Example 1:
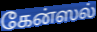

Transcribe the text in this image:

கேன்ஸல்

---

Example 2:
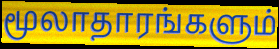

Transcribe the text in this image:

மூலாதாரங்களும்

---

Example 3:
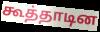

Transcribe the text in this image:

கூத்தாடின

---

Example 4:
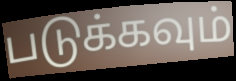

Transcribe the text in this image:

படுக்கவும்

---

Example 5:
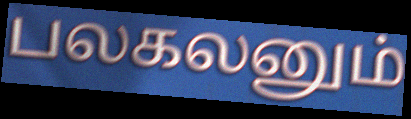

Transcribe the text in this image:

பலகலனும்